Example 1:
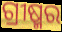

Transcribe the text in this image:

ଗ୍ରୀଷ୍ମର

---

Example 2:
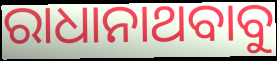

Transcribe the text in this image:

ରାଧାନାଥବାବୁ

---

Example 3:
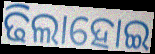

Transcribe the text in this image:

ଢିଲାହୋଇ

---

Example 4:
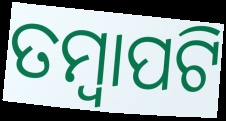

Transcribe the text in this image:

ତମ୍ବାପଟି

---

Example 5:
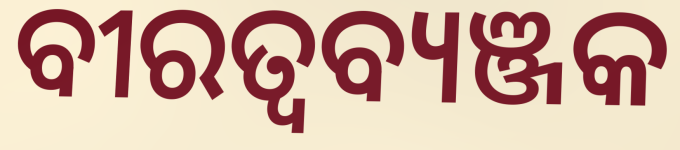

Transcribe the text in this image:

ବୀରତ୍ବବ୍ୟଞ୍ଜକ